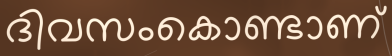
ദിവസംകൊണ്ടാണ്